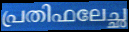
പ്രതിഫലേച്ഛ